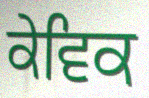
ਕੇਵਿਕ